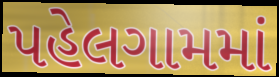
પહેલગામમાં